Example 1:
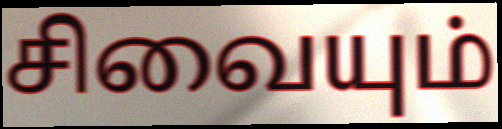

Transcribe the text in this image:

சிவையும்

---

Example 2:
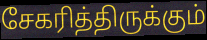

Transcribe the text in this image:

சேகரித்திருக்கும்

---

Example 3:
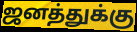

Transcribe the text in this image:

ஜனத்துக்கு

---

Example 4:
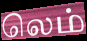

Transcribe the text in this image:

லெம்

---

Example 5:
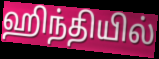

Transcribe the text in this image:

ஹிந்தியில்